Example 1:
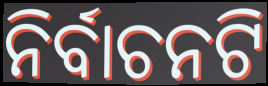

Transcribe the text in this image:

ନିର୍ବାଚନଟି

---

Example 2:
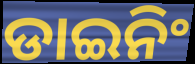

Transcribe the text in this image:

ଡାଇନିଂ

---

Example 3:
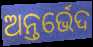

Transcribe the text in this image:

ଅନ୍ତର୍ଭେଦ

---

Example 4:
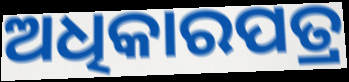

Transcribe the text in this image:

ଅଧିକାରପତ୍ର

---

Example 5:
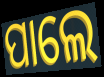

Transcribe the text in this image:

ପାଲେ